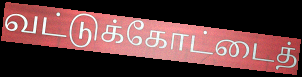
வட்டுக்கோட்டைத்